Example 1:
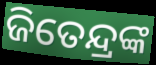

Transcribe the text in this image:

ଜିତେନ୍ଦ୍ରଙ୍କ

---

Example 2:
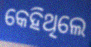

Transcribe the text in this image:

କେହିଥିଲେ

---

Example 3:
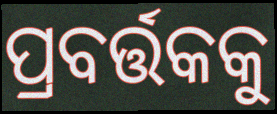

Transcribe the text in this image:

ପ୍ରବର୍ତ୍ତକକୁ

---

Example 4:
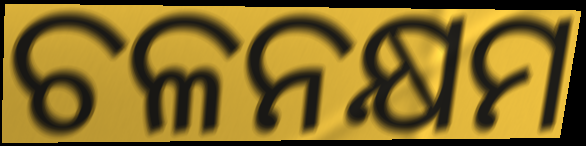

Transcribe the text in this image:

ଚଳନକ୍ଷମ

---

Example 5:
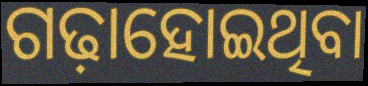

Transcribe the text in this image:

ଗଢ଼ାହୋଇଥିବା